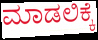
ಮಾಡಲಿಕ್ಕೆ